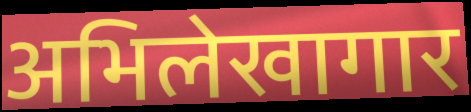
अभिलेखागार